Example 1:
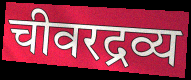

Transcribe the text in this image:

चीवरद्रव्य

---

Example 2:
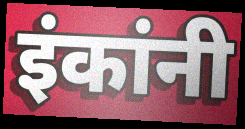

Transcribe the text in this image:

इंकांनी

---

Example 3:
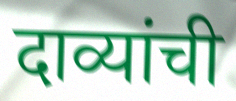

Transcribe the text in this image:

दाव्यांची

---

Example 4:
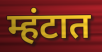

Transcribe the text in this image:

म्हंटात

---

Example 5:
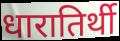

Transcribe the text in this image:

धारातिर्थी